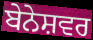
ਬੇਨੇਸ਼ਵਰ